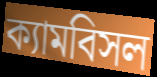
ক্যামবিসল